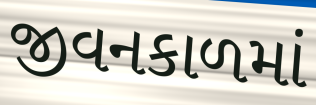
જીવનકાળમાં